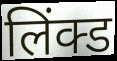
लिंक्ड